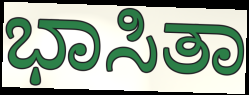
ಭಾಸಿತಾ